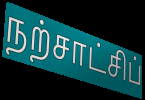
நற்சாட்சிப்